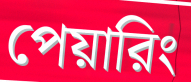
পেয়ারিং